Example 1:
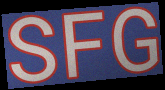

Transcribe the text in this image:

SFG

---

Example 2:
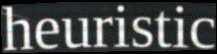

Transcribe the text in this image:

heuristic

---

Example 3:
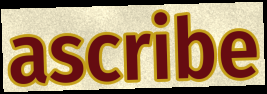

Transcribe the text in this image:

ascribe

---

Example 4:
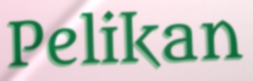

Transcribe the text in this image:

Pelikan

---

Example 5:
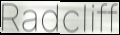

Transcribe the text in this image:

Radcliff